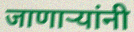
जाणाऱ्यांनी